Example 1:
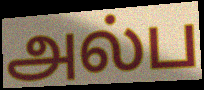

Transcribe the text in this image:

அல்ப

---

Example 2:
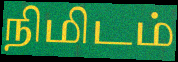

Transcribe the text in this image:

நிமிடம்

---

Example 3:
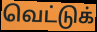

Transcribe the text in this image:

வெட்டுக்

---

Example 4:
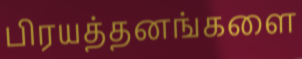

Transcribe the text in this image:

பிரயத்தனங்களை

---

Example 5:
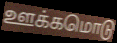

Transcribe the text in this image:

ஊக்கமொடு